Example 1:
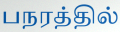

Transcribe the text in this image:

பநரத்தில்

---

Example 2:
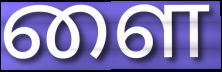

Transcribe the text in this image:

ளை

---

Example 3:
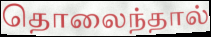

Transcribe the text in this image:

தொலைந்தால்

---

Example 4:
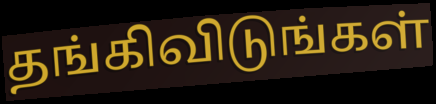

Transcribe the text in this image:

தங்கிவிடுங்கள்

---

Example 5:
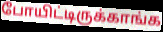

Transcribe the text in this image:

போயிட்டிருக்காங்க